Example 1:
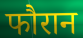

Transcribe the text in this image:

फौरान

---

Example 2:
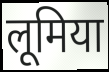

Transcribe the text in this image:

लूमिया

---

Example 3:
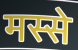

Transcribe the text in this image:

मस्से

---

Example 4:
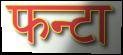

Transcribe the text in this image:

फन्टा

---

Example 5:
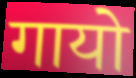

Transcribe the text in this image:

गायो